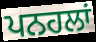
ਪਨਹਲਾਂ